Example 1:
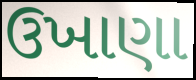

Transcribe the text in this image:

ઉખાણા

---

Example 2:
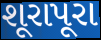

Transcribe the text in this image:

શૂરાપૂરા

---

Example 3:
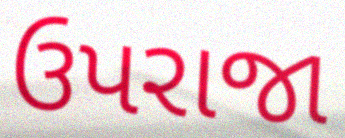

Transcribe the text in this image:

ઉપરાજા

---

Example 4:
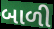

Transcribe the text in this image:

બાળી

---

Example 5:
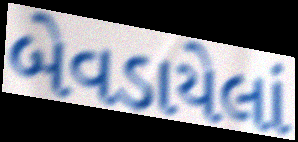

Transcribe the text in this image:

બેવડાયેલાં